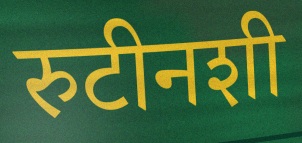
रुटीनशी